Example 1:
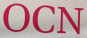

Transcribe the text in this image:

OCN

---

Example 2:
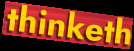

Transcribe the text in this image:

thinketh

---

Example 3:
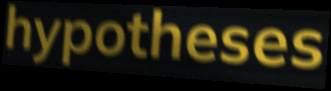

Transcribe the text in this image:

hypotheses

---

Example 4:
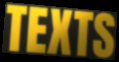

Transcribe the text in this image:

TEXTS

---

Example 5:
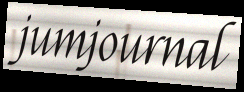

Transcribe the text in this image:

jumjournal